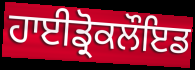
ਹਾਈਡ੍ਰੋਕਲੌਇਡ